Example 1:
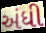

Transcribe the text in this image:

અંધી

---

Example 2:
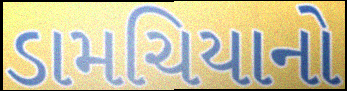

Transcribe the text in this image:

ડામચિયાનો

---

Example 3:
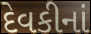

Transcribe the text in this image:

દેવકીનાં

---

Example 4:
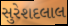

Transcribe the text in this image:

સુરેશદલાલ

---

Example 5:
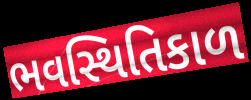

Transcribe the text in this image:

ભવસ્થિતિકાળ